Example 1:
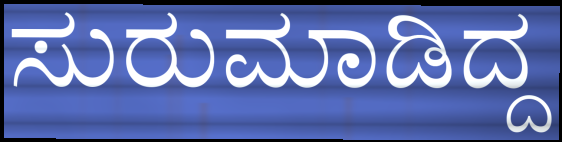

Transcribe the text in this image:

ಸುರುಮಾಡಿದ್ದ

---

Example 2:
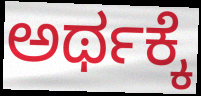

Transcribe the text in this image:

ಅರ್ಥಕ್ಕೆ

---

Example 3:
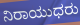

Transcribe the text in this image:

ನಿರಾಯುಧರು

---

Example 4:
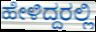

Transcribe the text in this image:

ಹೇಳಿದ್ದರಲ್ಲಿ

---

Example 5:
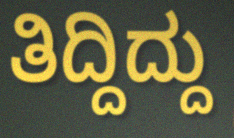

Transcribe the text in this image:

ತಿದ್ದಿದ್ದು